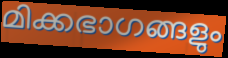
മിക്കഭാഗങ്ങളും